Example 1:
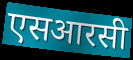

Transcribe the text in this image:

एसआरसी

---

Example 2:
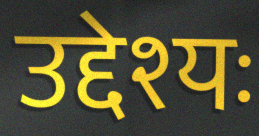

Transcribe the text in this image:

उद्देश्यः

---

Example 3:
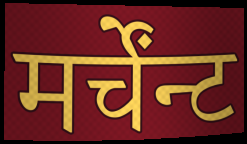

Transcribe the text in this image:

मर्चेंन्ट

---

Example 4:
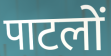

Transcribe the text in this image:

पाटलों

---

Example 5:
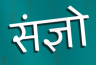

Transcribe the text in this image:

संज्ञो